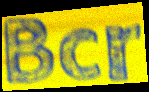
Bcr